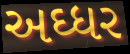
અઘ્ધર